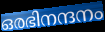
ഒരഭിനന്ദനം